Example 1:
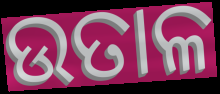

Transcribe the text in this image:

ଉତାଳ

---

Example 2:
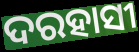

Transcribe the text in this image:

ଦରହାସୀ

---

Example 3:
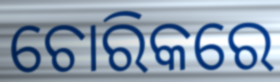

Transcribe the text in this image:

ଚୋରିକରେ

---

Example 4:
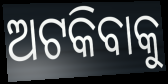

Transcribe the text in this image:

ଅଟକିବାକୁ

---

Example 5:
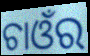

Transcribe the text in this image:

ଚାଓଁର